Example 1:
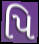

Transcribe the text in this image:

પિ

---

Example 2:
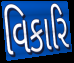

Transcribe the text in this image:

વિકારિ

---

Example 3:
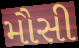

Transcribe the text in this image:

મૌસી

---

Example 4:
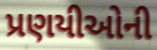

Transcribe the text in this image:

પ્રણયીઓની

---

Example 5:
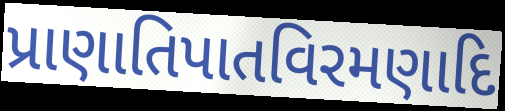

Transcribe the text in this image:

પ્રાણાતિપાતવિરમણાદિ